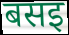
बसइ